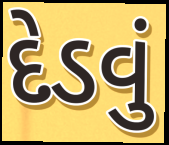
દેડવું